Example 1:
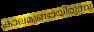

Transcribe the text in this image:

കാലമുണ്ടായിരുന്നു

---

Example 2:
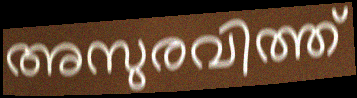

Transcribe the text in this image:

അസുരവിത്ത്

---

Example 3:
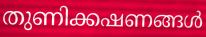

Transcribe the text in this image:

തുണിക്കഷണങ്ങൾ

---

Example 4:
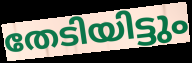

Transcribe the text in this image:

തേടിയിട്ടും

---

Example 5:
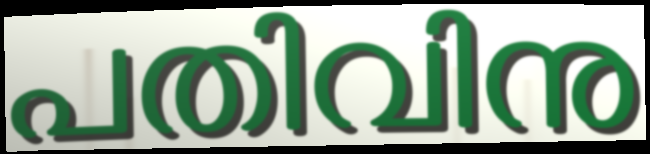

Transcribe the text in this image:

പതിവിനു